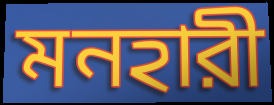
মনহারী